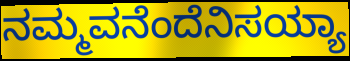
ನಮ್ಮವನೆಂದೆನಿಸಯ್ಯಾ